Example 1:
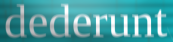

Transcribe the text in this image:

dederunt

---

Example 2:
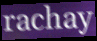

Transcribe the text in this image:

rachay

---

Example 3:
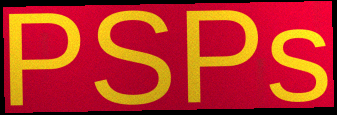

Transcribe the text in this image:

PSPs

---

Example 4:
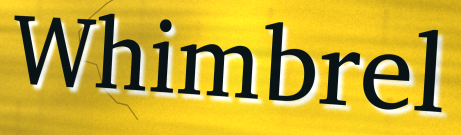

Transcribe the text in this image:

Whimbrel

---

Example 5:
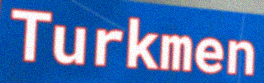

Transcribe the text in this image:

Turkmen